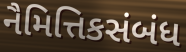
નૈમિત્તિકસંબંધ